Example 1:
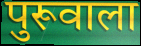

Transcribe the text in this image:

पुरूवाला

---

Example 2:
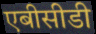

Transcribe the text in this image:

एबीसीडी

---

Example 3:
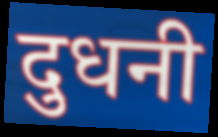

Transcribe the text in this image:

दुधनी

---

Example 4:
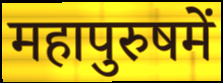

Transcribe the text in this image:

महापुरुषमें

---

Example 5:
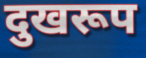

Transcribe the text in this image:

दुखरूप